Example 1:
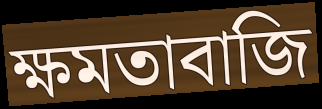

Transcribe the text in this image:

ক্ষমতাবাজি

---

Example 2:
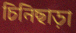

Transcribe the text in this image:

চিনিছাড়া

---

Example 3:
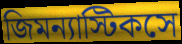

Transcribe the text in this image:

জিমন্যাস্টিকসে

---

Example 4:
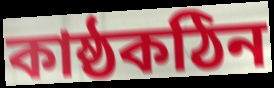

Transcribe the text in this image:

কাষ্ঠকঠিন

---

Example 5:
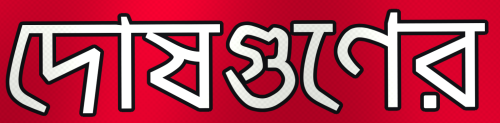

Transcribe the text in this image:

দোষগুণের